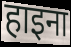
हाइना